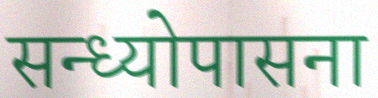
सन्ध्योपासना